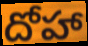
దోహా